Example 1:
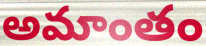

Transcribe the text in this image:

అమాంతం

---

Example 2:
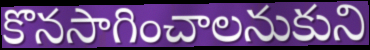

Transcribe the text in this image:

కొనసాగించాలనుకుని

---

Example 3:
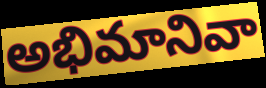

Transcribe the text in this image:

అభిమానివా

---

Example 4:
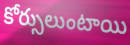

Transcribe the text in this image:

కోర్సులుంటాయి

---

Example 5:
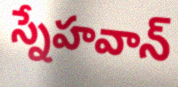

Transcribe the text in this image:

స్నేహవాన్